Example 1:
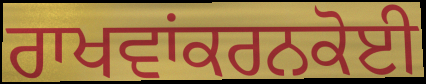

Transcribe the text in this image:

ਰਾਖਵਾਂਕਰਨਕੋਈ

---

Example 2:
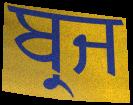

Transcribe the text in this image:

ਬ੍ਰਜ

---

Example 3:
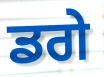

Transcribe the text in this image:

ਡਗੇ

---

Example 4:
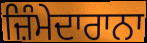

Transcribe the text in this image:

ਜ਼ਿੰਮੇਦਾਰਾਨਾ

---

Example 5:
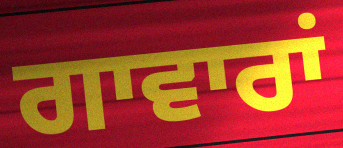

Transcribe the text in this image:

ਗਾਵਾਰਾਂ